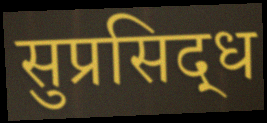
सुप्रसिद्ध